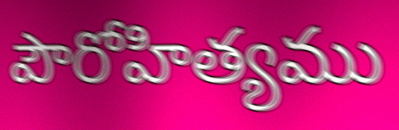
పౌరోహిత్యము